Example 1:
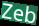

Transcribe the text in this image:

Zeb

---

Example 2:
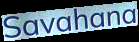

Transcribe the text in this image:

Savahana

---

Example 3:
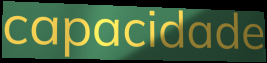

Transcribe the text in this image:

capacidade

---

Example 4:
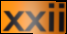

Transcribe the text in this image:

xxii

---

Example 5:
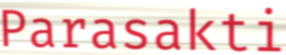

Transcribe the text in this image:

Parasakti